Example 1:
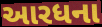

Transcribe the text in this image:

આરધના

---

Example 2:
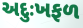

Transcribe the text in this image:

અદુઃખફળ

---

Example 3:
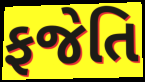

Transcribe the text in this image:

ફજેતિ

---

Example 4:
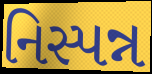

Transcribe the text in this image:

નિસ્પન્ન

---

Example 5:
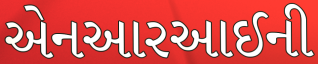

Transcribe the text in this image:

એનઆરઆઈની